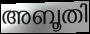
അബൂതി